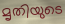
മൃതിയുടെ